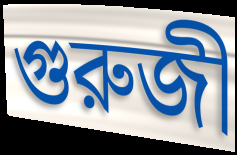
গুরুজী